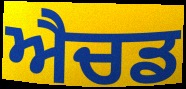
ਐਚਡ